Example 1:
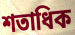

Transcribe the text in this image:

শতাধিক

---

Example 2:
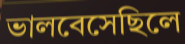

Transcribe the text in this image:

ভালবেসেছিলে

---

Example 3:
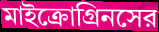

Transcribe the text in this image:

মাইক্রোগ্রিনসের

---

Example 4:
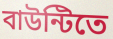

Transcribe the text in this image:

বাউন্টিতে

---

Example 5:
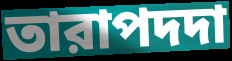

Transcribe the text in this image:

তারাপদদা